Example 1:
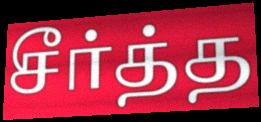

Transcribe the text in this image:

சீர்த்த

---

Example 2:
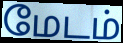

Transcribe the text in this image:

மேடம்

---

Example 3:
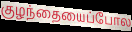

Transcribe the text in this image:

குழந்தையைப்போல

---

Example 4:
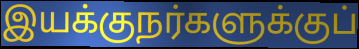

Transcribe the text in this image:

இயக்குநர்களுக்குப்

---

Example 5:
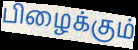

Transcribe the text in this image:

பிழைக்கும்